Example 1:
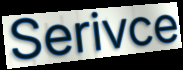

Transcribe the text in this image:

Serivce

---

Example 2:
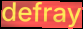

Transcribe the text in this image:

defray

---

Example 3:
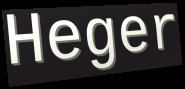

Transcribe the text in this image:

Heger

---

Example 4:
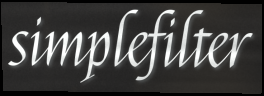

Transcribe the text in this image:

simplefilter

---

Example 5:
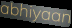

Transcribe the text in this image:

abhiyaan